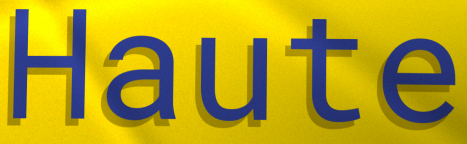
Haute